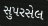
સુપરસેલ